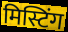
मिस्टिंग